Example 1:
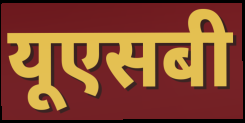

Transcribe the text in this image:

यूएसबी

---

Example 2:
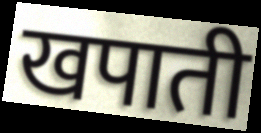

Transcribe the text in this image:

खपाती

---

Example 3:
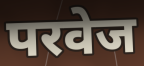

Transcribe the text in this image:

परवेज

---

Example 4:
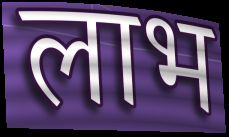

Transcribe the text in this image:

लाभ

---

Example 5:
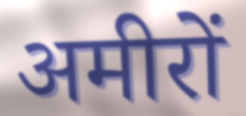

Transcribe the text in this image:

अमीरों